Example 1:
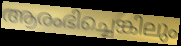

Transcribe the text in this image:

ആരംഭിച്ചെങ്കിലും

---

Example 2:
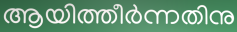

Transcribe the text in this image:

ആയിത്തീർന്നതിനു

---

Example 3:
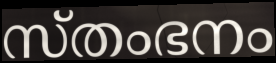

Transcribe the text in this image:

സ്തംഭനം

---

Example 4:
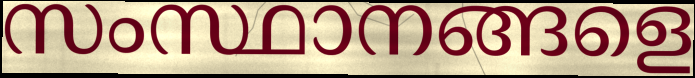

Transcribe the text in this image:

സംസ്ഥാനങ്ങളെ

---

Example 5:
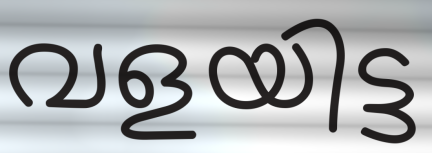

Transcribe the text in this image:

വളയിട്ട